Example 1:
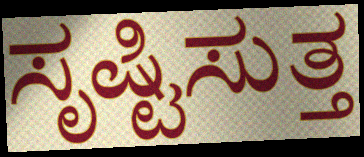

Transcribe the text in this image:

ಸೃಷ್ಟಿಸುತ್ತ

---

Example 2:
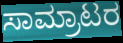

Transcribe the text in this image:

ಸಾಮ್ರಾಟರ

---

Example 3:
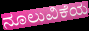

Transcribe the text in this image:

ನೂಲುವಿಕೆಯ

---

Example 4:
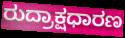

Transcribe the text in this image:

ರುದ್ರಾಕ್ಷಧಾರಣ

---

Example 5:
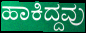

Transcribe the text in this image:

ಹಾಕಿದ್ದವು